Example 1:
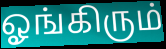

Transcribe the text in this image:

ஓங்கிரும்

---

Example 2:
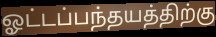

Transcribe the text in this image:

ஓட்டப்பந்தயத்திற்கு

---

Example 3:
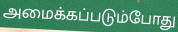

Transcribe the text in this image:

அமைக்கப்படும்போது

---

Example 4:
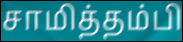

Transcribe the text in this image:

சாமித்தம்பி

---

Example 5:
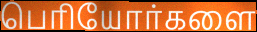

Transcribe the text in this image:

பெரியோர்களை